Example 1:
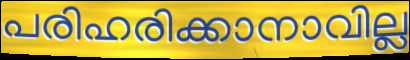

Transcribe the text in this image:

പരിഹരിക്കാനാവില്ല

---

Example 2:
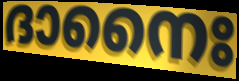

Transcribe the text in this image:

ദാനൈഃ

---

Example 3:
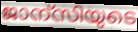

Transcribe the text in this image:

ജാന്സിയുടെ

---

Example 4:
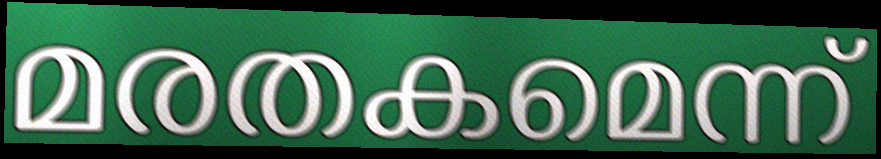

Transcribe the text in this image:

മരതകമെന്ന്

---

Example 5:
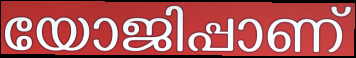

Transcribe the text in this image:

യോജിപ്പാണ്